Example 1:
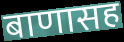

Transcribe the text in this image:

बाणासह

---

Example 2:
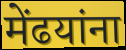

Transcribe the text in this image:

मेंढयांना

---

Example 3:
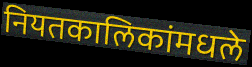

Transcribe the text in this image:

नियतकालिकांमधले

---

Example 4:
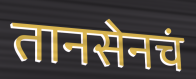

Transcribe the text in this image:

तानसेनचं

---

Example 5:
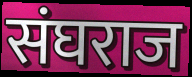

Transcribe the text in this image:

संघराज